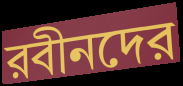
রবীনদের